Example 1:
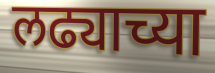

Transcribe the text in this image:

लढ्याच्या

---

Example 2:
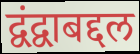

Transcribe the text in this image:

द्वंद्वाबद्दल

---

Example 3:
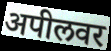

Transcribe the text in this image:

अपीलवर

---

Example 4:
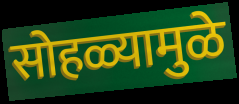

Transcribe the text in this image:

सोहळ्यामुळे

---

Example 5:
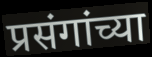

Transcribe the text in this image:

प्रसंगांच्या